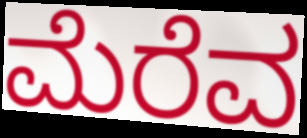
ಮೆರೆವ